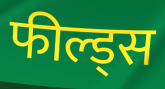
फील्ड्स